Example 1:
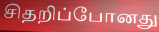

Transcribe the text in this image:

சிதறிப்போனது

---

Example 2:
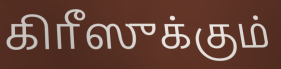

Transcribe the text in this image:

கிரீஸுக்கும்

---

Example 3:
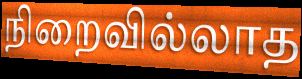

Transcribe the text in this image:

நிறைவில்லாத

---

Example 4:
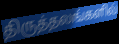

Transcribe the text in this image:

திருத்தலங்களில்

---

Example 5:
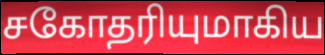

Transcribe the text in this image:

சகோதரியுமாகிய